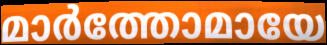
മാർത്തോമായേ